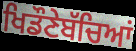
ਖਿਡੌਣੇਬੱਚਿਆਂ